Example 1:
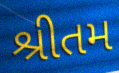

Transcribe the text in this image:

શ્રીતમ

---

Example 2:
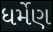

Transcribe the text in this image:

ધર્મેણ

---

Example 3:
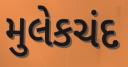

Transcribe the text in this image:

મુલેકચંદ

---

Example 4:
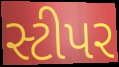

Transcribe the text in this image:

સ્ટીપર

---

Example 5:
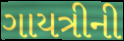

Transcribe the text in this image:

ગાયત્રીની